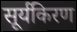
सूर्यकिरण